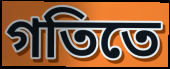
গতিতে